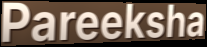
Pareeksha